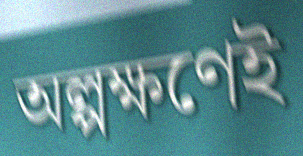
অল্পক্ষণেই